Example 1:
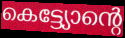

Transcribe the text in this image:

കെട്ട്യോന്റെ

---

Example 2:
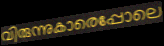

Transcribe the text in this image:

വിരുന്നുകാരെപ്പോലെ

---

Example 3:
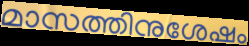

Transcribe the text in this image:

മാസത്തിനുശേഷം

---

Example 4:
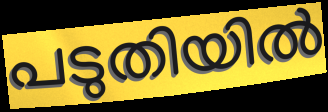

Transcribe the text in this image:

പടുതിയിൽ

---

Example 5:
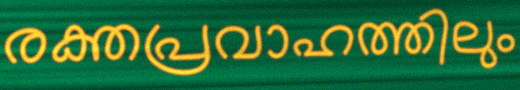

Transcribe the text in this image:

രക്തപ്രവാഹത്തിലും